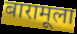
बारामूला